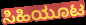
ಸಿಹಿಯೂಟ